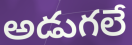
అడుగలే